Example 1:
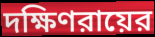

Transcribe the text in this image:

দক্ষিণরায়ের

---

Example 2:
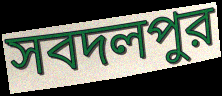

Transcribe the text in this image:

সবদলপুর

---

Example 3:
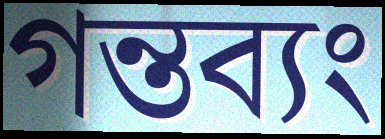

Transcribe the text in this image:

গন্তব্যং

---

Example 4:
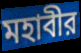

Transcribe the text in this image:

মহাবীর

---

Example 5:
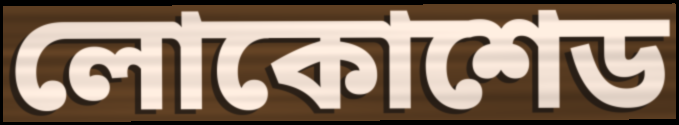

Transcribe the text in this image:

লোকোশেড